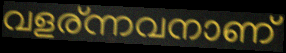
വളര്ന്നവനാണ്